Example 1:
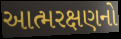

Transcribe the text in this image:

આત્મરક્ષણનો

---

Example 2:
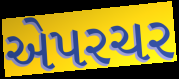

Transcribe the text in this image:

એપરચર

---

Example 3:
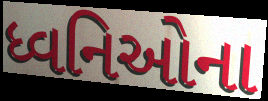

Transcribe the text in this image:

ધ્વનિઓના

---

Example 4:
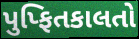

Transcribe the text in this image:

પુપ્ફિતકાલતો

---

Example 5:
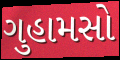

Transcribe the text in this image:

ગુહામસો